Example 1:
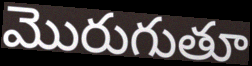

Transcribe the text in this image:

మొరుగుతూ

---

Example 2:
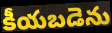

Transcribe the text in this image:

కీయబడెను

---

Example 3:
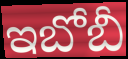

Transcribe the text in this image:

ఇబోబీ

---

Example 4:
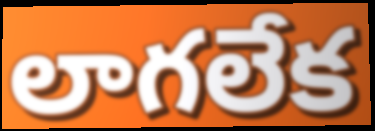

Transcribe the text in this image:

లాగలేక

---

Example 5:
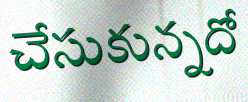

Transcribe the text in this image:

చేసుకున్నదో